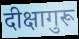
दीक्षागुरू